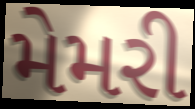
મેમરી